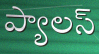
ప్యాలస్